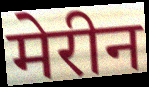
मेरीन